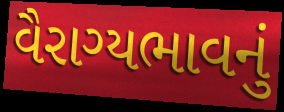
વૈરાગ્યભાવનું